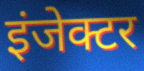
इंजेक्टर